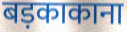
बड़काकाना